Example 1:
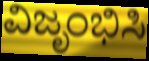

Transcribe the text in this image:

ವಿಜೃಂಭಿಸಿ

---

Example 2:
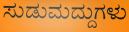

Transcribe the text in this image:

ಸುಡುಮದ್ದುಗಳು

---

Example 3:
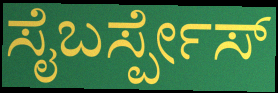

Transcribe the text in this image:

ಸೈಬರ್ಸ್ಪೇಸ್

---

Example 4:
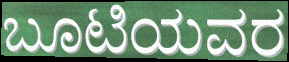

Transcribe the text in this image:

ಬೂಟಿಯವರ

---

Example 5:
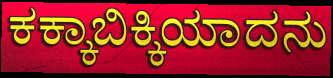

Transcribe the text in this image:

ಕಕ್ಕಾಬಿಕ್ಕಿಯಾದನು